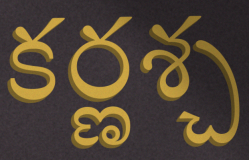
కర్ణశ్చ